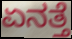
ಏನತ್ತೆ